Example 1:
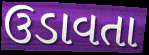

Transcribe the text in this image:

ઉડાવતા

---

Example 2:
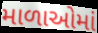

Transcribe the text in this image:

માળાઓમાં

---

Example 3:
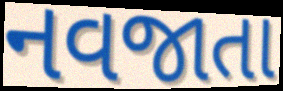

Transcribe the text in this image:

નવજાતા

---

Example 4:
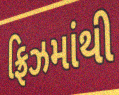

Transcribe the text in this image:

ફ્રિઝમાંથી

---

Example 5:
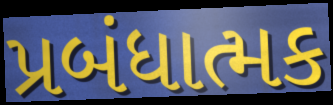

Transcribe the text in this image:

પ્રબંધાત્મક